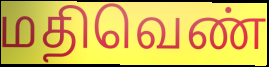
மதிவெண்